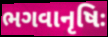
ભગવાનૃષિઃ